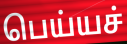
பெய்யச்